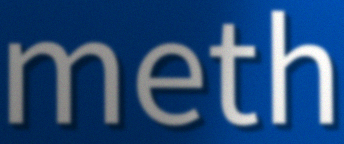
meth